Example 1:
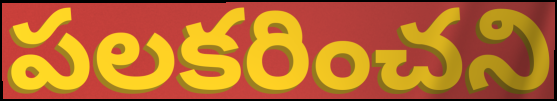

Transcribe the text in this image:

పలకరించని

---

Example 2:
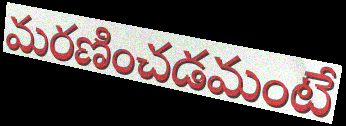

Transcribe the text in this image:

మరణించడమంటే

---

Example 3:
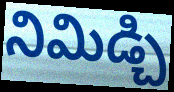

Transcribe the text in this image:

నిమిడ్చి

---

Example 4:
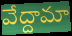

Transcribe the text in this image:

వేద్దామా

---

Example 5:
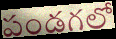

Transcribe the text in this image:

పండగలో